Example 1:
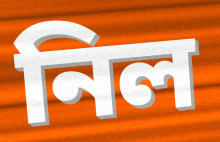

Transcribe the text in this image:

নিল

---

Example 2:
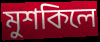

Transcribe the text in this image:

মুশকিলে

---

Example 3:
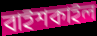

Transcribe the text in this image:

বাইশকাইল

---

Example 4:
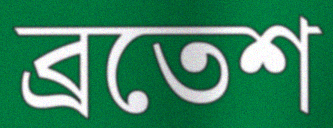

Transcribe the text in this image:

ব্রতেশ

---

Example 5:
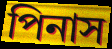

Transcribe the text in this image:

পিনাস